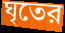
ঘৃতের